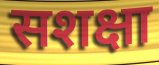
सशक्षा